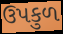
ઉપકુળ